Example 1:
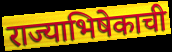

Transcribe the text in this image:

राज्याभिषेकाची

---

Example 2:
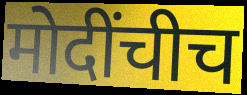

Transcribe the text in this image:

मोदींचीच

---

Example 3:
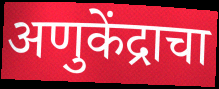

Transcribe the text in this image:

अणुकेंद्राचा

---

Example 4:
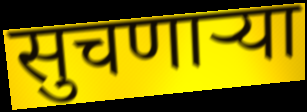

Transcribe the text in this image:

सुचणाऱ्या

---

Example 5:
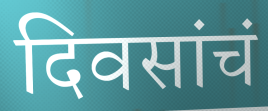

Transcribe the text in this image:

दिवसांचं